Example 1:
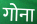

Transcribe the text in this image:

गोना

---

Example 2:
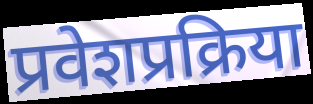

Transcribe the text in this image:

प्रवेशप्रक्रिया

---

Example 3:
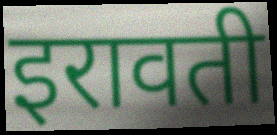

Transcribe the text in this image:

इरावती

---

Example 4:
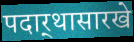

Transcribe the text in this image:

पदार्थासारखे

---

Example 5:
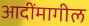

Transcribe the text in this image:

आदींमागील